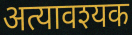
अत्यावश्यक